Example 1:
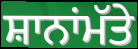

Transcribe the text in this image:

ਸ਼ਾਨਾਂਮੱਤੇ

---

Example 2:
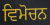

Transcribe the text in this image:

ਵਿਮੋਚਨ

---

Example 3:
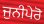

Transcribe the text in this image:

ਜੁਨੀਪੇਰੋ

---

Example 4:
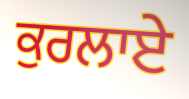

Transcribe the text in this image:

ਕੁਰਲਾਏ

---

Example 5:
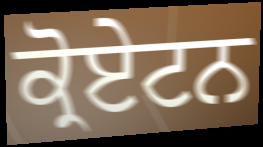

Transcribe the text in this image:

ਕ੍ਰੋਏਟਨ